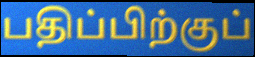
பதிப்பிற்குப்